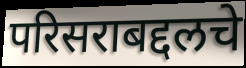
परिसराबद्दलचे